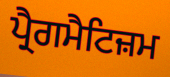
ਪ੍ਰੈਗਮੈਟਿਜ਼ਮ